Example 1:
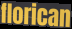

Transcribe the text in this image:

florican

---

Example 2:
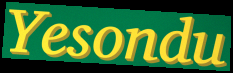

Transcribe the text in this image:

Yesondu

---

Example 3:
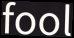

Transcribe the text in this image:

fool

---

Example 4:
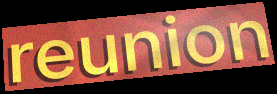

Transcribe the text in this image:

reunion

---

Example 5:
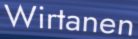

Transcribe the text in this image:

Wirtanen